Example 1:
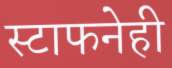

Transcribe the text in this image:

स्टाफनेही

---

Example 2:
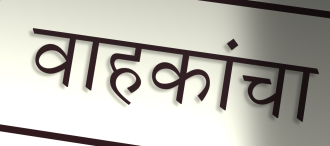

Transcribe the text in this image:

वाहकांचा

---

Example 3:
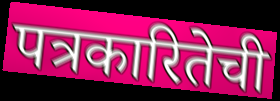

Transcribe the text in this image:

पत्रकारितेची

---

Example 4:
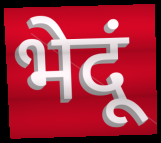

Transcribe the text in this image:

भेदूं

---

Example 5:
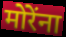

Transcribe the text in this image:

मोरेंना